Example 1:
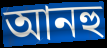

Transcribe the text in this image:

আনহু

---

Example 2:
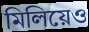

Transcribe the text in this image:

মিলিয়েও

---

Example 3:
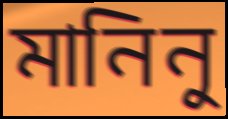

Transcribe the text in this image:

মানিনু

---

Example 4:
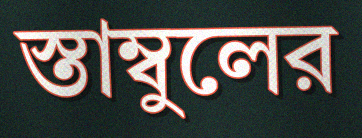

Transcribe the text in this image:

স্তাম্বুলের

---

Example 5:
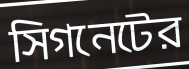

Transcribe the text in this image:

সিগনেটের